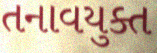
તનાવયુક્ત